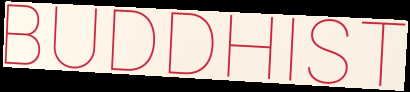
BUDDHIST